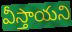
వీస్తాయని